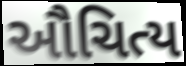
ઔચિત્ય